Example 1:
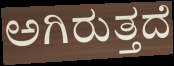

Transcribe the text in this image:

ಅಗಿರುತ್ತದೆ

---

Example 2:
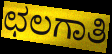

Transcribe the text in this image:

ಛಲಗಾತಿ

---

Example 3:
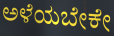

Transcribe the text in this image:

ಅಳೆಯಬೇಕೇ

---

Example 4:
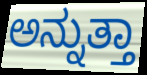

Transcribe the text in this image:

ಅನ್ನುತ್ತಾ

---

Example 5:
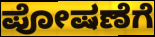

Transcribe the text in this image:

ಪೋಷಣೆಗೆ